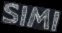
SIMI